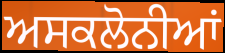
ਅਸਕਲੋਨੀਆਂ